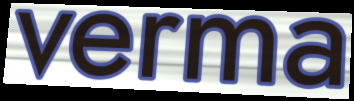
verma